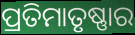
ପ୍ରତିମାତୃଷ୍ଣାର